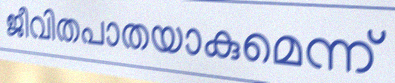
ജീവിതപാതയാകുമെന്ന്